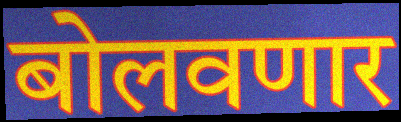
बोलवणार